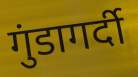
गुंडागर्दी